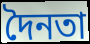
দৈনতা